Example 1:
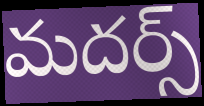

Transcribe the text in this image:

మదర్స్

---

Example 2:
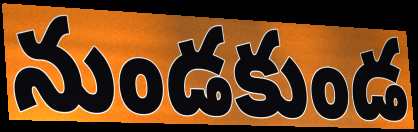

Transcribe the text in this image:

నుండకుండ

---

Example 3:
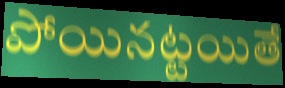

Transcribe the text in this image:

పోయినట్టయితే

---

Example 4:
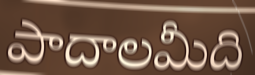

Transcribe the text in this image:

పాదాలమీది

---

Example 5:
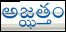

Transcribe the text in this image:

అజ్ఝత్తం